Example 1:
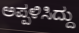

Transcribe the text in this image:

ಅಪ್ಪಳಿಸಿದ್ದು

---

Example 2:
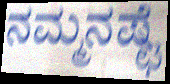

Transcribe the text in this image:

ನಮ್ಮನಷ್ಟೆ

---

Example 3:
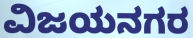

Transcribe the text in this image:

ವಿಜಯನಗರ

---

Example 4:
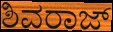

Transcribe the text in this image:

ಶಿವರಾಜ್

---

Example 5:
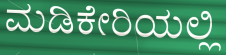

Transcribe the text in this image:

ಮಡಿಕೇರಿಯಲ್ಲಿ